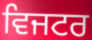
ਵਿਜਟਰ